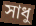
সাধু